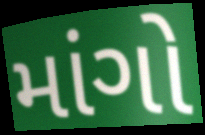
માંગો